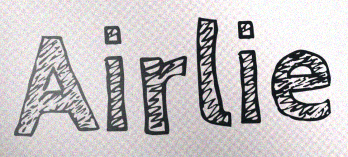
Airlie